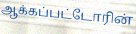
ஆக்கப்பட்டோரின்